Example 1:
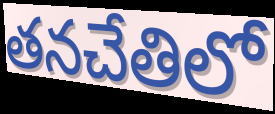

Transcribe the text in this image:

తనచేతిలో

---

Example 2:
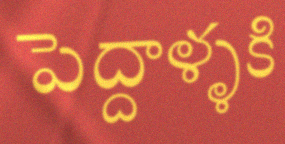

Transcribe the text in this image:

పెద్దాళ్ళకి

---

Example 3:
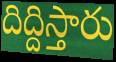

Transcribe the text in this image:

దిద్దిస్తారు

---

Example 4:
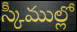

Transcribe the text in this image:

స్కీముల్లో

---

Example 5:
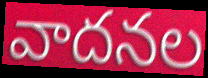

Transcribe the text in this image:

వాదనల